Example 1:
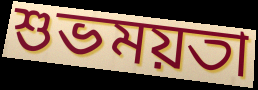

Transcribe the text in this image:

শুভময়তা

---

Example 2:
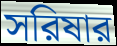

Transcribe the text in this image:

সরিষার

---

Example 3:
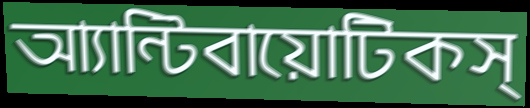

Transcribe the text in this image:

আ্যান্টিবায়োটিকস্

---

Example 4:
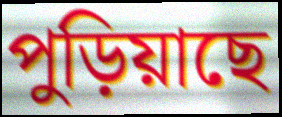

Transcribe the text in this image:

পুড়িয়াছে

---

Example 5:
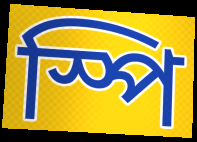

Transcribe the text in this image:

স্পি